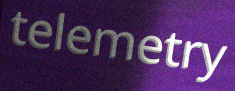
telemetry